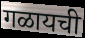
गळायची